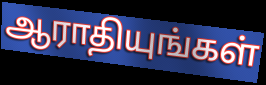
ஆராதியுங்கள்